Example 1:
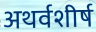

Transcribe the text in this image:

अथर्वशीर्ष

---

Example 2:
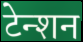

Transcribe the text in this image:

टेन्शन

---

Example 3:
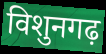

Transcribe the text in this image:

विशुनगढ़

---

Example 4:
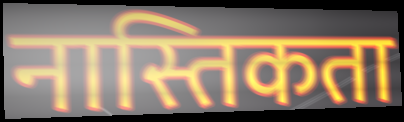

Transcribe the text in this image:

नास्तिकता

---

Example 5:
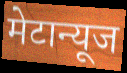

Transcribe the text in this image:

मेटान्यूज